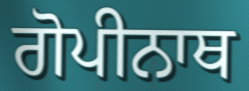
ਗੋਪੀਨਾਥ